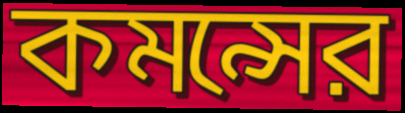
কমন্সের